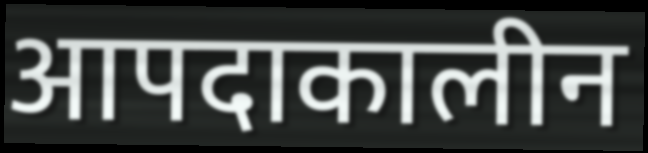
आपदाकालीन